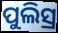
ପୁଲିସ୍ର